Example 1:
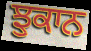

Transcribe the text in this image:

ਝੁਕਾਨ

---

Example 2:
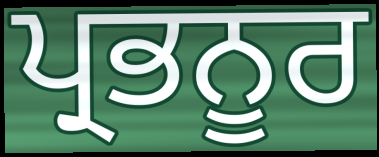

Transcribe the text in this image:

ਪ੍ਰਭਨੂਰ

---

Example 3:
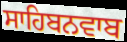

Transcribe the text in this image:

ਸਾਹਿਬਨਵਾਬ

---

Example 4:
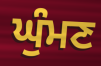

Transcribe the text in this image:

ਘੁੰਮਣ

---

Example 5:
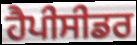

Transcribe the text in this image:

ਹੈਪੀਸੀਡਰ